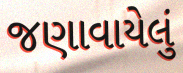
જણાવાયેલું